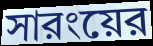
সারংয়ের